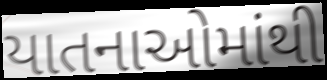
યાતનાઓમાંથી